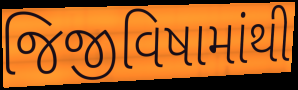
જિજીવિષામાંથી